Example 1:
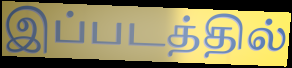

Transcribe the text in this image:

இப்படத்தில்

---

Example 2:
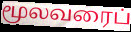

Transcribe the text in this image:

மூலவரைப்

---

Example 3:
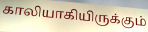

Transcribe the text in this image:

காலியாகியிருக்கும்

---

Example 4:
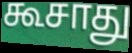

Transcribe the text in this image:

கூசாது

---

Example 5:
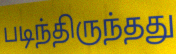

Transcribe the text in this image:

படிந்திருந்தது